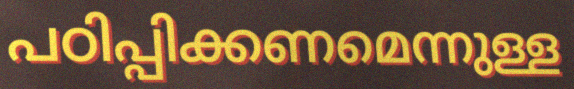
പഠിപ്പിക്കണമെന്നുള്ള